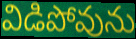
విడిపోవును